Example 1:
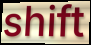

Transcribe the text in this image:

shift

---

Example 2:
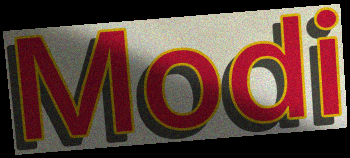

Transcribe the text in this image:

Modi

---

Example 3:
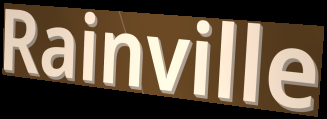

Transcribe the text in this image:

Rainville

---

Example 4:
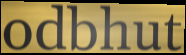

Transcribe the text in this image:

odbhut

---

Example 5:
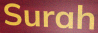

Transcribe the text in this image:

Surah